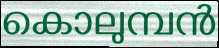
കൊലുമ്പൻ